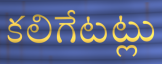
కలిగేటట్లు